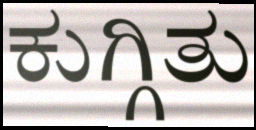
ಕುಗ್ಗಿತು